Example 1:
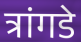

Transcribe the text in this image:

त्रांगडे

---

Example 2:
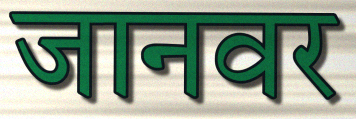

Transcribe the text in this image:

जानवर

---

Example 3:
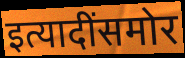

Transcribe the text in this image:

इत्यादींसमोर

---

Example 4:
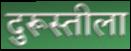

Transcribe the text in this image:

दुरूस्तीला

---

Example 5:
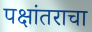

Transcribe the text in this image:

पक्षांतराचा